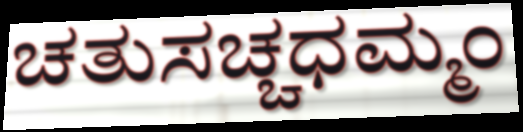
ಚತುಸಚ್ಚಧಮ್ಮಂ